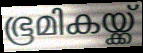
ഭൂമികയ്ക്ക്